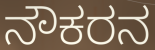
ನೌಕರನ